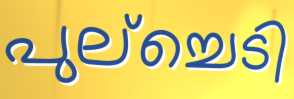
പുല്ച്ചെടി